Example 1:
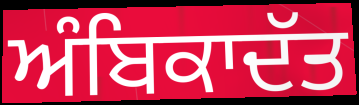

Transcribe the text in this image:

ਅੰਬਿਕਾਦੱਤ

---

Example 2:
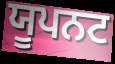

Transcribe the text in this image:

ਯੂਪਨਟ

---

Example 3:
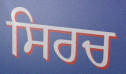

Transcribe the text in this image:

ਸਿਰਚ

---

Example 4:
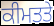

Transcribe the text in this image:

ਕੀਮਤਤੇ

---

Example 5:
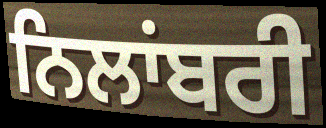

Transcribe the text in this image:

ਨਿਲਾਂਬਰੀ